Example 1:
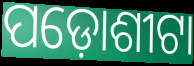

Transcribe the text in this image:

ପଡ଼ୋଶୀଟା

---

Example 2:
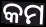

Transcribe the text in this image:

କମ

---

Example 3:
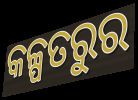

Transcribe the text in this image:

କଳ୍ପତରୁର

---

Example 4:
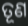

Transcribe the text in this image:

ତୂଣ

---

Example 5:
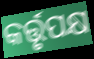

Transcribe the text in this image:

କର୍ତ୍ତୃପକ୍ଷ